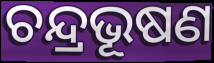
ଚନ୍ଦ୍ରଭୂଷଣ